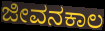
ಜೀವನಕಾಲ